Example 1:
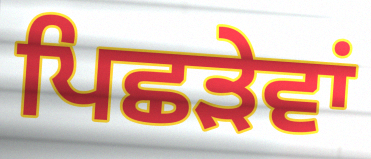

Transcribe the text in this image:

ਪਿਛੜੇਵਾਂ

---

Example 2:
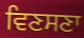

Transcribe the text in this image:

ਵਿਣਸਣਾ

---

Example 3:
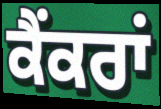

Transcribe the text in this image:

ਕੈਂਕਰਾਂ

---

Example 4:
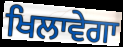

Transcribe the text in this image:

ਖਿਲਾਵੇਗਾ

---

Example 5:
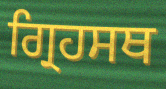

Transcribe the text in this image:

ਗ੍ਰਿਹਸਥ